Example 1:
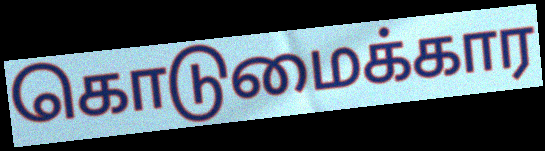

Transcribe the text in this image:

கொடுமைக்கார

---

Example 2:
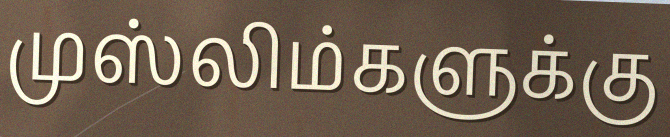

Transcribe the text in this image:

முஸ்லிம்களுக்கு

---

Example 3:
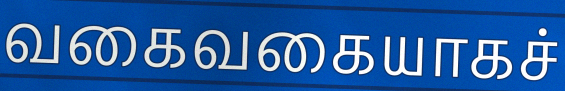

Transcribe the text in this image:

வகைவகையாகச்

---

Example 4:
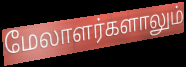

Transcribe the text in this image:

மேலாளர்களாலும்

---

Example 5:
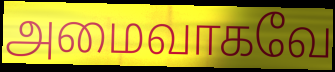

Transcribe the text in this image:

அமைவாகவே